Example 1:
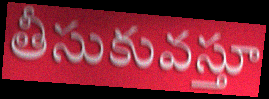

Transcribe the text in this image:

తీసుకువస్తూ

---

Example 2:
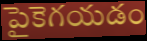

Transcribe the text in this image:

పైకెగయడం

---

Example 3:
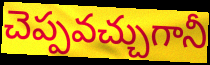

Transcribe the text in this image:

చెప్పవచ్చుగానీ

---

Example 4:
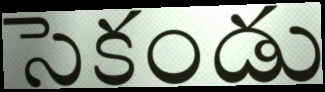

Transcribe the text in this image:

సెకండు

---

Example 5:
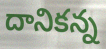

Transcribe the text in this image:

దానికన్న